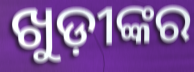
ଖୁଡ଼ୀଙ୍କର